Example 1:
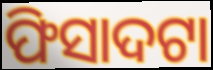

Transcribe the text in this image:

ଫିସାଦଟା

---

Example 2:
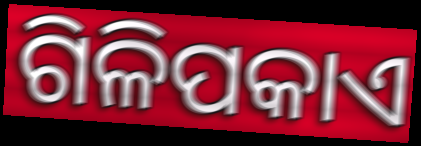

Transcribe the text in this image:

ଗିଳିପକାଏ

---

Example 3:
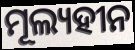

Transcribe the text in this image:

ମୂଲ୍ୟହୀନ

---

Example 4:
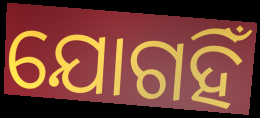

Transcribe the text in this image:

ଯୋଗହିଁ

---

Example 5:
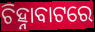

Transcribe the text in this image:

ଚିହ୍ନାବାଟରେ